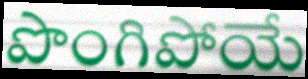
పొంగిపోయే